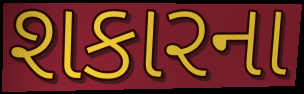
શકારના